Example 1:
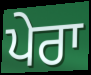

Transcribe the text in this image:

ਪੇਰਾ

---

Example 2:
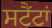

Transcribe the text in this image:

ਸਟੈਂਟਾਂ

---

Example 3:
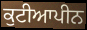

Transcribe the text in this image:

ਕੁਟੀਆਪੀਨ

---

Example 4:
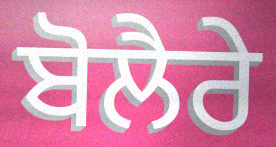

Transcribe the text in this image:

ਬੋਲੈਰੇ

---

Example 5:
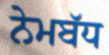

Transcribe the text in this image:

ਨੇਮਬੱਧ